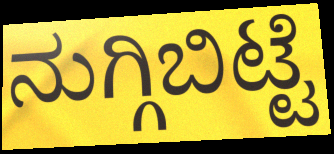
ನುಗ್ಗಿಬಿಟ್ಟೆ